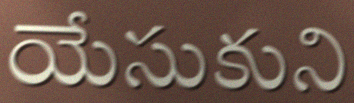
యేసుకుని